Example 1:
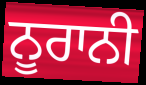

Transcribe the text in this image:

ਨੂਰਾਨੀ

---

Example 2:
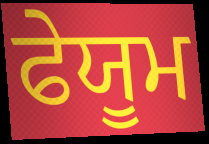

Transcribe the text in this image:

ਫੇਯੂਮ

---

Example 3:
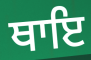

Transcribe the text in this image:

ਥਾਇ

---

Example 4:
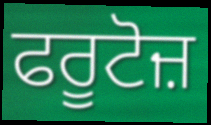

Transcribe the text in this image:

ਫਰੂਟੋਜ਼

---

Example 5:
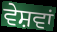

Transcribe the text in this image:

ਵੇਸ਼ਵਾਂ